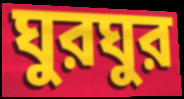
ঘুরঘুর